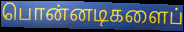
பொன்னடிகளைப்